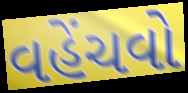
વહેંચવો